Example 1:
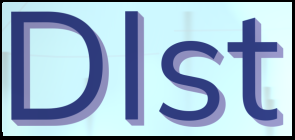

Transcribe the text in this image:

DIst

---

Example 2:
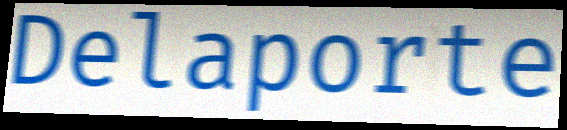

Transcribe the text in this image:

Delaporte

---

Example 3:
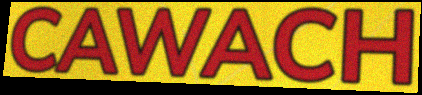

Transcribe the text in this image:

CAWACH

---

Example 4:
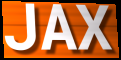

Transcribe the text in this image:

JAX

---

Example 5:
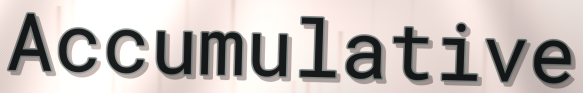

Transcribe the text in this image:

Accumulative